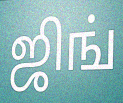
ஜிங்